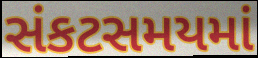
સંકટસમયમાં